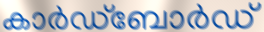
കാർഡ്ബോർഡ്